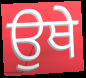
ਉਥੇ